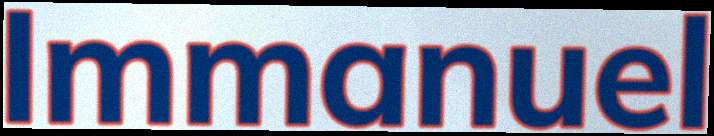
Immanuel